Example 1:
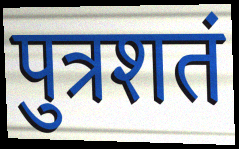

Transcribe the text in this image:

पुत्रशतं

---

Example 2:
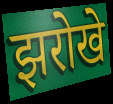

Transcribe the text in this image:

झरोखे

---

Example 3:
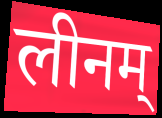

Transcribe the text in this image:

लीनम्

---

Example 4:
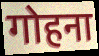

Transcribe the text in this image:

गोहना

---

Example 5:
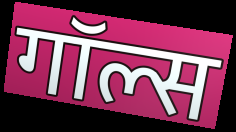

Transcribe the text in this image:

गॉल्स